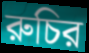
রুচির